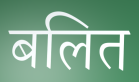
बलित